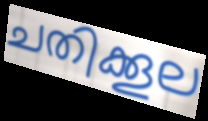
ചതിക്കൂല